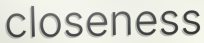
closeness